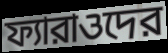
ফ্যারাওদের